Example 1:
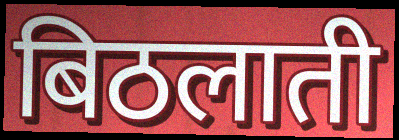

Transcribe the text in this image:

बिठलाती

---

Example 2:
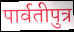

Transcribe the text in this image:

पार्वतीपुत्र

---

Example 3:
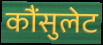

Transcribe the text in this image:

कौंसुलेट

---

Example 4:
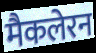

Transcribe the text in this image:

मैकलेरन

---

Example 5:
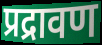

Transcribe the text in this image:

प्रद्रावण